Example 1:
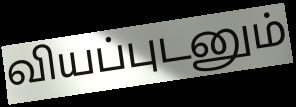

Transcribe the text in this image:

வியப்புடனும்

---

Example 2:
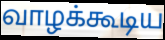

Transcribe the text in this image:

வாழக்கூடிய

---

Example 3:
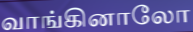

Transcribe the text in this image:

வாங்கினாலோ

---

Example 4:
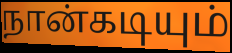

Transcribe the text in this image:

நான்கடியும்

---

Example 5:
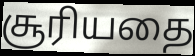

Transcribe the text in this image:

சூரியதை